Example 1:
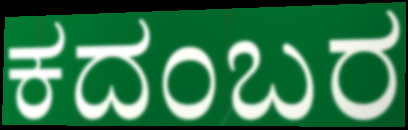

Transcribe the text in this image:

ಕದಂಬರ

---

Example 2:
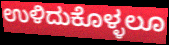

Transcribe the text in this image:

ಉಳಿದುಕೊಳ್ಳಲೂ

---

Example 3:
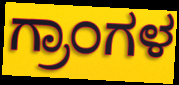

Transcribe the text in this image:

ಗ್ರಾಂಗಳ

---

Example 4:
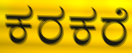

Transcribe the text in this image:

ಕರಕರೆ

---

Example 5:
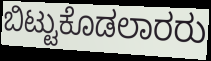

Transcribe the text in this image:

ಬಿಟ್ಟುಕೊಡಲಾರರು